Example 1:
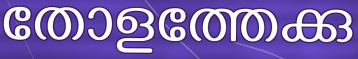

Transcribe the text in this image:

തോളത്തേക്കു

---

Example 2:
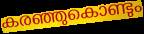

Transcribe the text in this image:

കരഞ്ഞുകൊണ്ടും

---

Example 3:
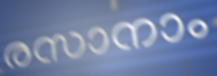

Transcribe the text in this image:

രസാനാം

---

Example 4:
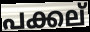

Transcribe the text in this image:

പക്കല്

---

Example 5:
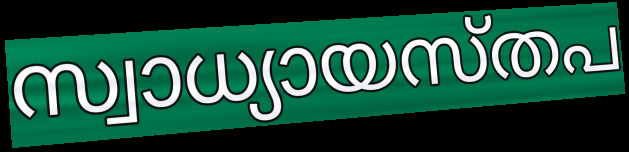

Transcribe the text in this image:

സ്വാധ്യായസ്തപ